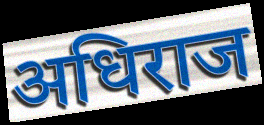
अधिराज